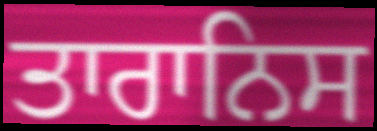
ਤਾਰਾਨਿਸ